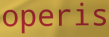
operis